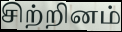
சிற்றினம்